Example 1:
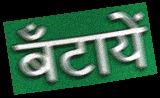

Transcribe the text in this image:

बँटायें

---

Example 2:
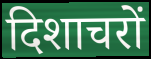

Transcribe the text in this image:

दिशाचरों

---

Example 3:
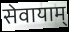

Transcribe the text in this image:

सेवायाम्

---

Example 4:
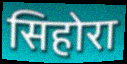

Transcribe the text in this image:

सिहोरा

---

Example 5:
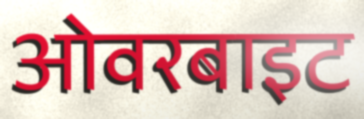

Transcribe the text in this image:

ओवरबाइट